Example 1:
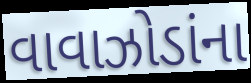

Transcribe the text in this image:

વાવાઝોડાંના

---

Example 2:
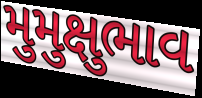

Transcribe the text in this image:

મુમુક્ષુભાવ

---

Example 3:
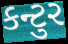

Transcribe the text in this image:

કન્ટુર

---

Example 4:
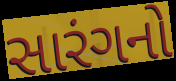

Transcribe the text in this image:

સારંગનો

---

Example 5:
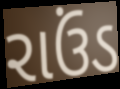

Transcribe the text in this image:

રાઉંડ